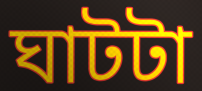
ঘাটটা